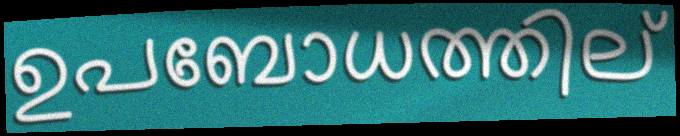
ഉപബോധത്തില്